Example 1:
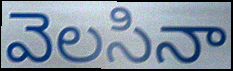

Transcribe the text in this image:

వెలసినా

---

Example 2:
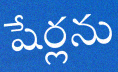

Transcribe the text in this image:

షేర్లను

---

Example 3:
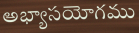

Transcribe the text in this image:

అభ్యాసయోగము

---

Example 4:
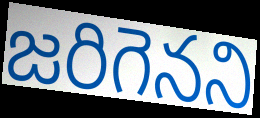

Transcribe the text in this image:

జరిగెనని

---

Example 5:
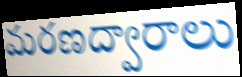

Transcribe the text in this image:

మరణద్వారాలు